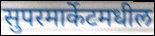
सुपरमार्केटमधील